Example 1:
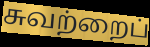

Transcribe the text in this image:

சுவற்றைப்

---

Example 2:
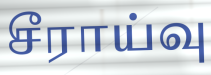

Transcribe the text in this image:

சீராய்வு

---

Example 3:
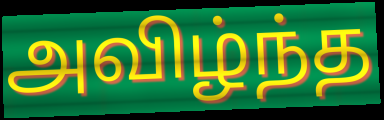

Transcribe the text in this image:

அவிழ்ந்த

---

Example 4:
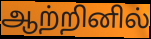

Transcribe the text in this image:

ஆற்றினில்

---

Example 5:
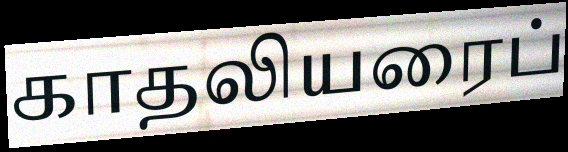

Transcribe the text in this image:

காதலியரைப்